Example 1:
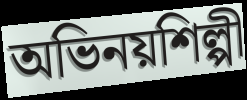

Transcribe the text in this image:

অভিনয়শিল্পী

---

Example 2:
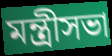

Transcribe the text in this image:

মন্ত্রীসভা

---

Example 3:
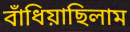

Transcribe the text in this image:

বাঁধিয়াছিলাম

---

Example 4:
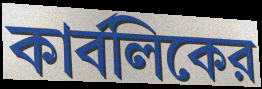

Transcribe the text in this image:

কার্বলিকের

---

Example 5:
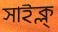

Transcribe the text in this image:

সাইক্ল্